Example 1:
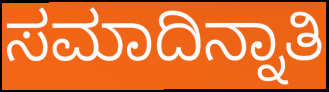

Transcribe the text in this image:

ಸಮಾದಿನ್ನಾತಿ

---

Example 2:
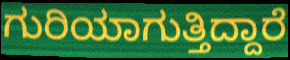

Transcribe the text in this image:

ಗುರಿಯಾಗುತ್ತಿದ್ದಾರೆ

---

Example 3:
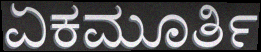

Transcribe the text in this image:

ಏಕಮೂರ್ತಿ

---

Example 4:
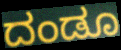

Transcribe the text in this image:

ದಂಡೂ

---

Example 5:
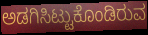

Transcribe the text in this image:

ಅಡಗಿಸಿಟ್ಟುಕೊಂಡಿರುವ